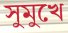
সুমুখে